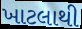
ખાટલાથી